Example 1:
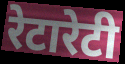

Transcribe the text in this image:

रेटारेटी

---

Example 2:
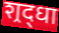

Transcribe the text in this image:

श्रद्धा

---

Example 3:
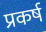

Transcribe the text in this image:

प्रकर्ष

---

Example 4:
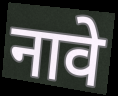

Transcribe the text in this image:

नावे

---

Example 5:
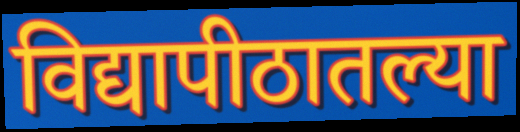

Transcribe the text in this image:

विद्यापीठातल्या